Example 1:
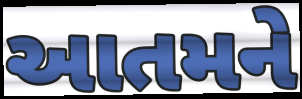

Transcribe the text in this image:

આતમને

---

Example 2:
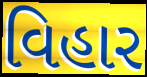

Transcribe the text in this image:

વિહાર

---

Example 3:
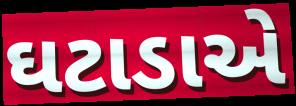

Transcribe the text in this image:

ઘટાડાએ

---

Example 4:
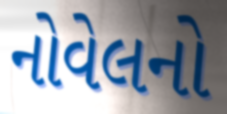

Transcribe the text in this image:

નોવેલનો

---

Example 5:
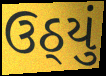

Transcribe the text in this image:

ઉઠ્યું